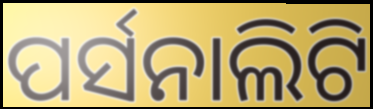
ପର୍ସନାଲିଟି